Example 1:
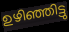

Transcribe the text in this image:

ഉഴിഞ്ഞിട്ടു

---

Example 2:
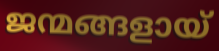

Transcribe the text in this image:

ജന്മങ്ങളായ്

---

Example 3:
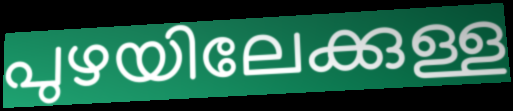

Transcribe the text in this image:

പുഴയിലേക്കുള്ള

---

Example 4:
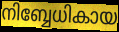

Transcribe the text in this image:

നിബ്ബേധികായ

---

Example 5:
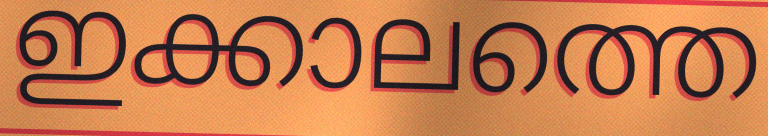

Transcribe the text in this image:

ഇക്കാലത്തെ